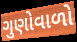
ગુણોવાળો